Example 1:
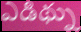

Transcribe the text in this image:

ఎడిథ్ను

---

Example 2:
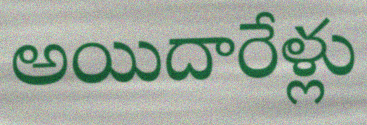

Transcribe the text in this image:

అయిదారేళ్లు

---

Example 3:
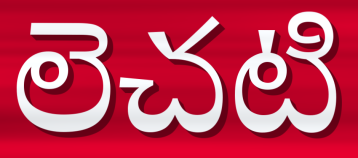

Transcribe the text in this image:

లెచటి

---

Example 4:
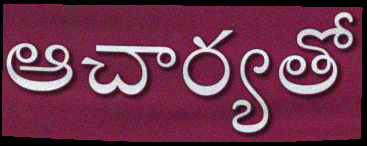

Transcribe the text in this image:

ఆచార్యతో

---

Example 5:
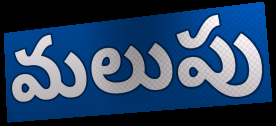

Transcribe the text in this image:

మలుపు